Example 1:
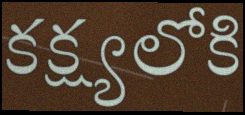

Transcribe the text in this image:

కక్ష్యలోకి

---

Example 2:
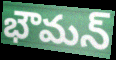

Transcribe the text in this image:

భౌమన్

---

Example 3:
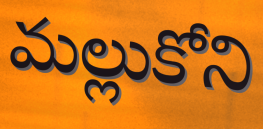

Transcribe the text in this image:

మల్లుకోని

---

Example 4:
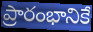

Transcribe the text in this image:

ప్రారంభానికే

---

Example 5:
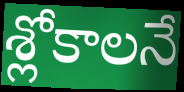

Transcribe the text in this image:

శ్లోకాలనే